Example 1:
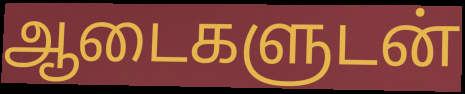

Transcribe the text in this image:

ஆடைகளுடன்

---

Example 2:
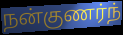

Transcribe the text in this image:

நன்குணர்ந்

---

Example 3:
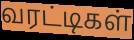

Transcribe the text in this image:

வரட்டிகள்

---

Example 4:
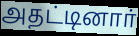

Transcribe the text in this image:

அதட்டினார்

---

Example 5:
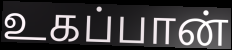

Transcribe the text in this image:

உகப்பான்